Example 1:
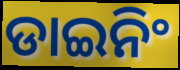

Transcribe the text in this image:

ଡାଇନିଂ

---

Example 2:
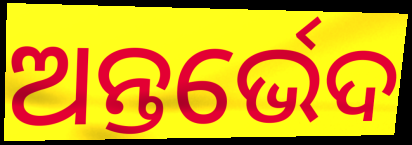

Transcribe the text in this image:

ଅନ୍ତର୍ଭେଦ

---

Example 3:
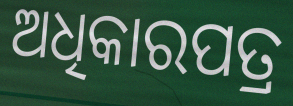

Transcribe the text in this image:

ଅଧିକାରପତ୍ର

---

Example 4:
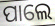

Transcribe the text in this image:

ପାଲେ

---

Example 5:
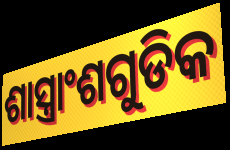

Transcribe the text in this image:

ଶାସ୍ତ୍ରାଂଶଗୁଡିକ